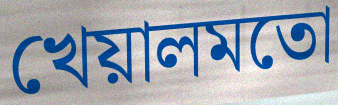
খেয়ালমতো